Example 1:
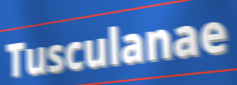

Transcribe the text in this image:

Tusculanae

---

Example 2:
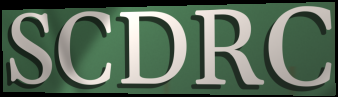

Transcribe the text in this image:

SCDRC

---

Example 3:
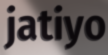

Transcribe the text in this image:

jatiyo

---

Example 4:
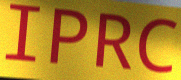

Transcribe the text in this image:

IPRC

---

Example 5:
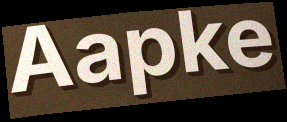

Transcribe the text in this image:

Aapke